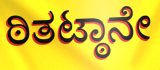
ಠಿತಟ್ಠಾನೇ